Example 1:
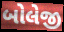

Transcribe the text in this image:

બોલેજી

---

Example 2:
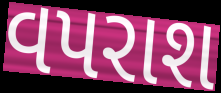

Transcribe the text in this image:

વપરાશ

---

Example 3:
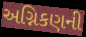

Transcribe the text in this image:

અગ્નિકણની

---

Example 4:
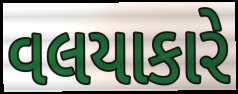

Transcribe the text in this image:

વલયાકારે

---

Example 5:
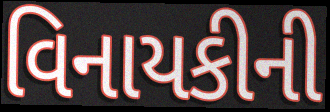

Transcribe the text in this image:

વિનાયકીની